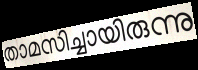
താമസിച്ചായിരുന്നു